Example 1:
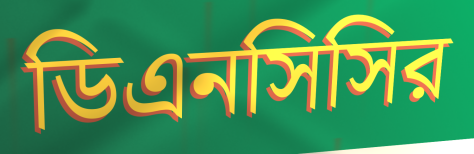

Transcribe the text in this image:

ডিএনসিসির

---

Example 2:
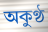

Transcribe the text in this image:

অকুণ্ঠ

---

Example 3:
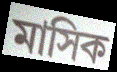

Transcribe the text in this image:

মাসিক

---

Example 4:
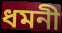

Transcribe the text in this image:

ধমনী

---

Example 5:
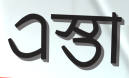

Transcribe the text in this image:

এস্তা